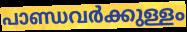
പാണ്ഡവർക്കുള്ളം